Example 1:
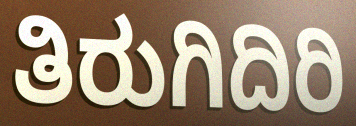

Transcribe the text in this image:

ತಿರುಗಿದಿರಿ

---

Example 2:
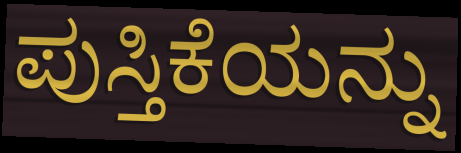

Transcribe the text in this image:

ಪುಸ್ತಿಕೆಯನ್ನು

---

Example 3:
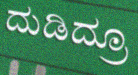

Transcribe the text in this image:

ದುಡಿದ್ರೂ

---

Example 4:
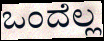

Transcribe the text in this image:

ಒಂದೆಲ್ಲ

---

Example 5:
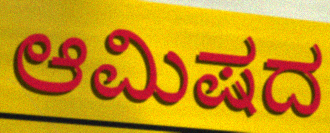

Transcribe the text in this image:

ಆಮಿಷದ